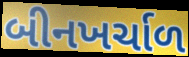
બીનખર્ચાળ